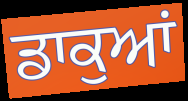
ਡਾਕੁਆਂ